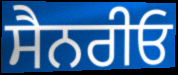
ਸੈਨਰੀਓ